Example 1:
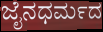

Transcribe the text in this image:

ಜೈನಧರ್ಮದ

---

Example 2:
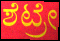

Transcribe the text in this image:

ಶೆಟ್ರೇ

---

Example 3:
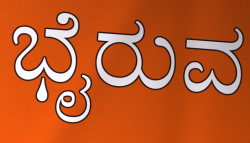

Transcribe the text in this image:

ಭೈರುವ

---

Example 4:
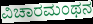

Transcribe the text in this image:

ವಿಚಾರಮಂಥನ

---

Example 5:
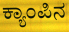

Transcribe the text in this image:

ಕ್ಯಾಂಪಿನ